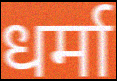
धर्मा